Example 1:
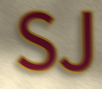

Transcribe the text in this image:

SJ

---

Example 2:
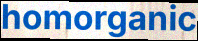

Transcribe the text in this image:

homorganic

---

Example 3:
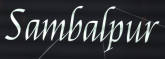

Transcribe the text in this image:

Sambalpur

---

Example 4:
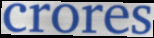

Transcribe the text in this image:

crores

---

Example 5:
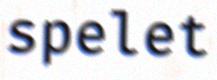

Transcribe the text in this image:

spelet